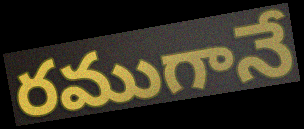
రముగానే